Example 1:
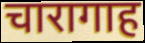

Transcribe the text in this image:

चारागाह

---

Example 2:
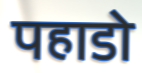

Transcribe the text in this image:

पहाडो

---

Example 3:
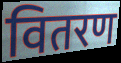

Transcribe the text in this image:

वितरण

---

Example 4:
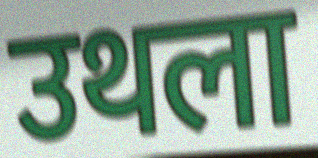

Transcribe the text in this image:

उथला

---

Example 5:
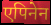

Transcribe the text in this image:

एपिनेन